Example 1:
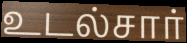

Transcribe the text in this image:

உடல்சார்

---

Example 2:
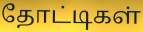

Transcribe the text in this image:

தோட்டிகள்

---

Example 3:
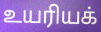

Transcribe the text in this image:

உயரியக்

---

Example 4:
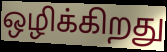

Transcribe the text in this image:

ஒழிக்கிறது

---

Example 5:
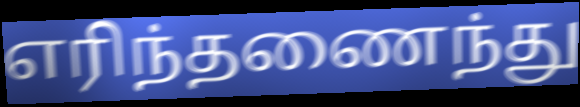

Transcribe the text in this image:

எரிந்தணைந்து